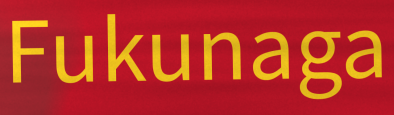
Fukunaga